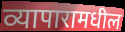
व्यापारामधील